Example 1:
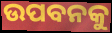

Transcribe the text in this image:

ଉପବନକୁ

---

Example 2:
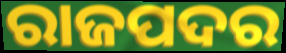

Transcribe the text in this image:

ରାଜପଦର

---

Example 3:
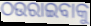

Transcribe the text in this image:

ଠଉରାଇବାକୁ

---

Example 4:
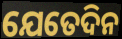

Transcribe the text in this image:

ଯେତେଦିନ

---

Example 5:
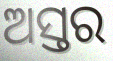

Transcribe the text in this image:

ଅସ୍ତର